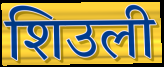
शिउली